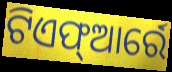
ଟିଏଫ୍ଆର୍ରେ